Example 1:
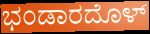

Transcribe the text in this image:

ಭಂಡಾರದೊಳ್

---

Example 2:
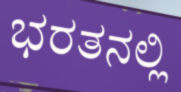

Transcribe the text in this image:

ಭರತನಲ್ಲಿ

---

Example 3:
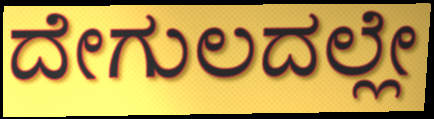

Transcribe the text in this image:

ದೇಗುಲದಲ್ಲೇ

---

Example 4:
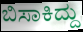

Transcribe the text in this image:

ಬಿಸಾಕಿದ್ದು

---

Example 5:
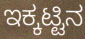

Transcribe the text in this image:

ಇಕ್ಕಟ್ಟಿನ